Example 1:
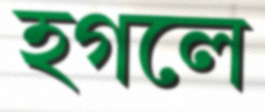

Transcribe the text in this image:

হগলে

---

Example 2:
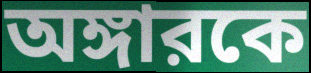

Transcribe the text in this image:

অঙ্গারকে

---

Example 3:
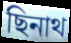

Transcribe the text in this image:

ছিনাথ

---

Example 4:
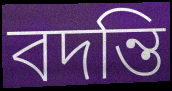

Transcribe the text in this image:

বদন্তি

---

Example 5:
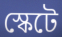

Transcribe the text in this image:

স্কেটে